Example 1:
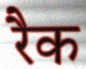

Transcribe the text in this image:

रैक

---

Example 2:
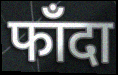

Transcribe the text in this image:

फाँदा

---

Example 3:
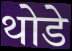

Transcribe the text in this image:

थोडे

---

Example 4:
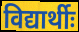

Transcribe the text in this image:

विद्यार्थीः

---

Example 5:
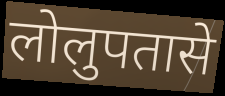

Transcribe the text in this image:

लोलुपतासे